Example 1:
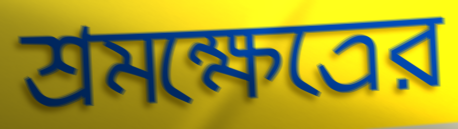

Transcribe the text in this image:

শ্রমক্ষেত্রের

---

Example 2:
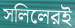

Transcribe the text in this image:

সলিলেরই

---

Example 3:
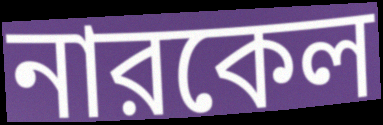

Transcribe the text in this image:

নারকেল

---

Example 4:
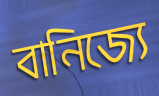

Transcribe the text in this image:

বানিজ্যে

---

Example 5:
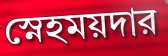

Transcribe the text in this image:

স্নেহময়দার